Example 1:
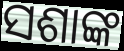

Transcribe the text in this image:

ସଶାଙ୍କ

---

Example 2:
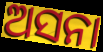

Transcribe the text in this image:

ଅସନା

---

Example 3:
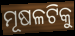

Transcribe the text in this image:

ମୂଷଳଟିକୁ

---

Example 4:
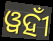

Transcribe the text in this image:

ୱହୀଁ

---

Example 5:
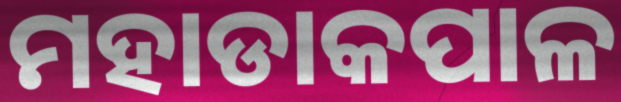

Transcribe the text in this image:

ମହାଡାକପାଳ